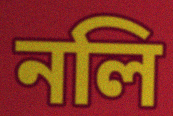
নলি